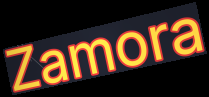
Zamora